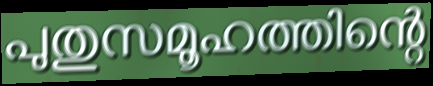
പുതുസമൂഹത്തിന്റെ